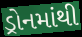
ડ્રોનમાંથી